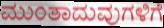
ಮುಂತಾದುವುಗಳಿಗೆ